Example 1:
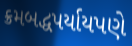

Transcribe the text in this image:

ક્રમબદ્ધપર્યાયપણે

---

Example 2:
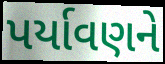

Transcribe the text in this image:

પર્યાવણને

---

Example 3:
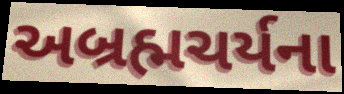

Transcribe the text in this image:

અબ્રહ્મચર્યના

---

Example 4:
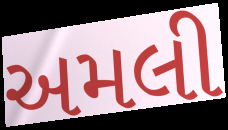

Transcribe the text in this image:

અમલી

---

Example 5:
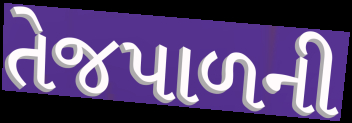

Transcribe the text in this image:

તેજપાળની